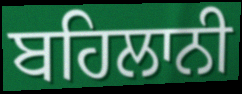
ਬਹਿਲਾਨੀ